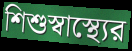
শিশুস্বাস্থ্যের